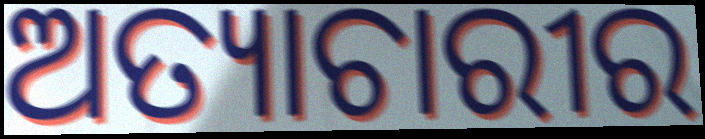
ଅତ୍ୟାଚାରୀର